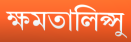
ক্ষমতালিপ্সু